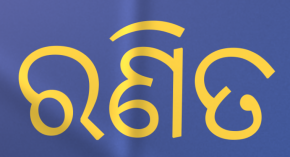
ରଣିତ